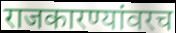
राजकारण्यांवरच